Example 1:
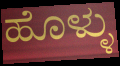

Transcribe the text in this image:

ಹೊಳ್ಳು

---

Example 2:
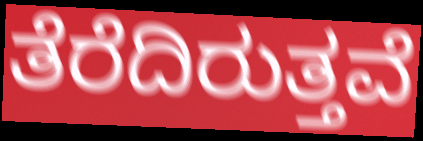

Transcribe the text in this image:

ತೆರೆದಿರುತ್ತವೆ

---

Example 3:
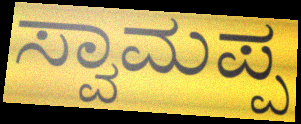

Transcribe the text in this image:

ಸ್ವಾಮಪ್ಪ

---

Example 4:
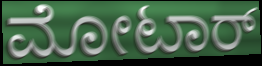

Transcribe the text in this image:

ಮೋಟಾರ್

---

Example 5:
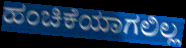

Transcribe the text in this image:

ಹಂಚಿಕೆಯಾಗಲಿಲ್ಲ